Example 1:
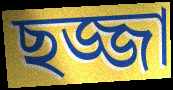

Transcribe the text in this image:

ছজ্জা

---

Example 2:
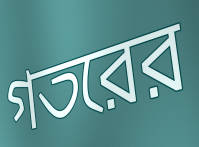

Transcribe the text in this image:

গতরের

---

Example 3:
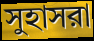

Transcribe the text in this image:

সুহাসরা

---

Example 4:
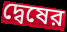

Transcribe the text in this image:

দ্বেষের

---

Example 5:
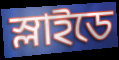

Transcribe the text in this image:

স্লাইডে